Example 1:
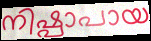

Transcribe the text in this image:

നിഷ്പാപായ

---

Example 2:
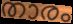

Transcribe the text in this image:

താരം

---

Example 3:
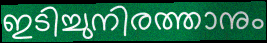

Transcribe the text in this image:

ഇടിച്ചുനിരത്താനും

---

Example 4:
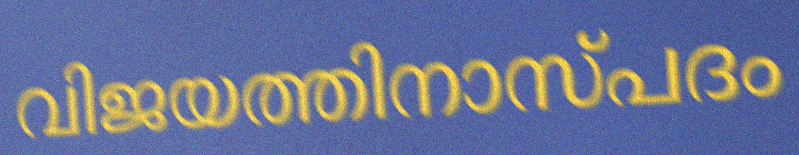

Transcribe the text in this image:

വിജയത്തിനാസ്പദം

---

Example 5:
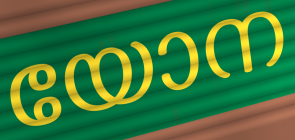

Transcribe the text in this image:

യോന